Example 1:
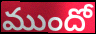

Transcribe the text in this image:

ముందో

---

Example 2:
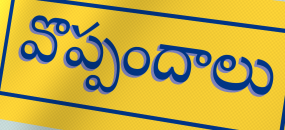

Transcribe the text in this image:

వొప్పందాలు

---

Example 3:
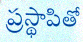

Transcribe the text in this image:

ప్రస్థాపితో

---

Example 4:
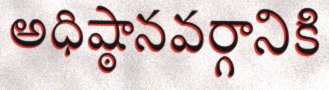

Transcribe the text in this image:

అధిష్ఠానవర్గానికి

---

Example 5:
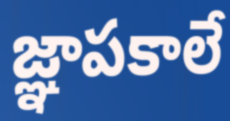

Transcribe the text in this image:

జ్ఞాపకాలే